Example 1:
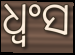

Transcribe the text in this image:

ଧ୍ୱଂସ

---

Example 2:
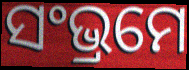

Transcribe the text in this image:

ସଂଭ୍ରମେ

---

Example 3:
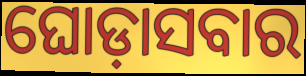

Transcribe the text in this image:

ଘୋଡ଼ାସବାର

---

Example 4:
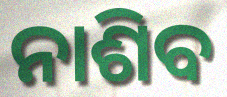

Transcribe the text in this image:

ନାଶିବ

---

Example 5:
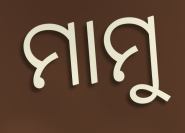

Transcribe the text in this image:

ମାମୁ